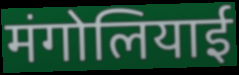
मंगोलियाई